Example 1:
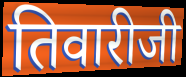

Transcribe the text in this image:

तिवारीजी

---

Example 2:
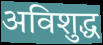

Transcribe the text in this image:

अविशुद्ध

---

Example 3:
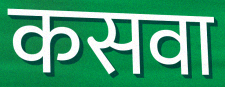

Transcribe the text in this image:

कसवा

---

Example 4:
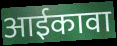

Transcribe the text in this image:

आईकावा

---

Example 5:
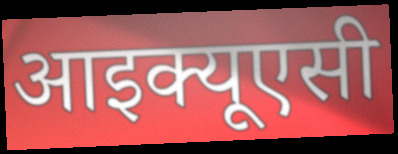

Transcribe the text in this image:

आइक्यूएसी